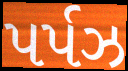
પર્પઝ